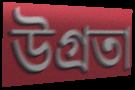
উগ্ৰতা